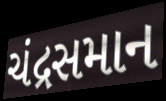
ચંદ્રસમાન